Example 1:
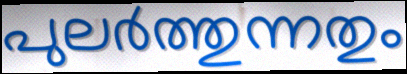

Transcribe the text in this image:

പുലർത്തുന്നതും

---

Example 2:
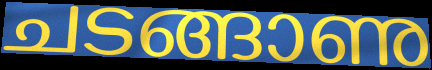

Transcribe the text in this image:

ചടങ്ങാണു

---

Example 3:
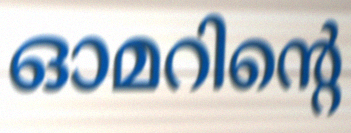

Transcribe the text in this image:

ഓമറിന്റെ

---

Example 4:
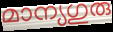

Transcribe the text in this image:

മാന്യഗുരു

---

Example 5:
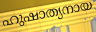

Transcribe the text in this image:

ഹുഷാത്യനായ